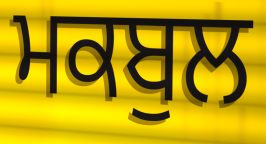
ਮਕਬੁਲ